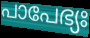
പാപേഭ്യഃ